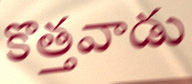
కొత్తవాడు